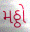
મઠ્ઠો